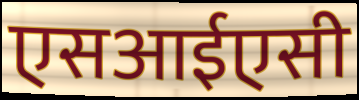
एसआईएसी